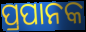
ପ୍ରପାନକ